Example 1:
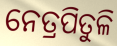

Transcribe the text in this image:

ନେତ୍ରପିତୁଳି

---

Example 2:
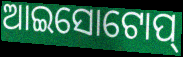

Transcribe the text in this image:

ଆଇସୋଟୋପ୍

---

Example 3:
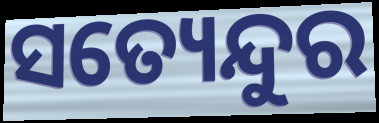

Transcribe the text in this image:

ସତ୍ୟେନ୍ଦୁର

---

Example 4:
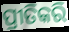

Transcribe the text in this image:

ପ୍ରୀତିକରି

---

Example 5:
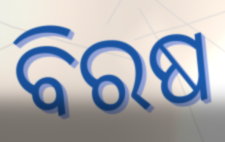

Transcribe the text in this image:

ବିରଷ